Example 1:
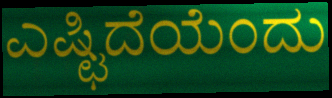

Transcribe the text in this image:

ಎಷ್ಟಿದೆಯೆಂದು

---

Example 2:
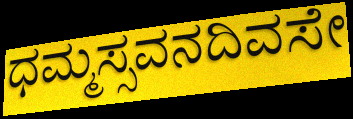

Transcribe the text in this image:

ಧಮ್ಮಸ್ಸವನದಿವಸೇ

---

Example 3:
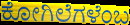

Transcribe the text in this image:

ಕೋಗಿಲೆಗಳೆಂಬ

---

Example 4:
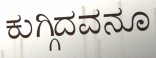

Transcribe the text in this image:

ಕುಗ್ಗಿದವನೂ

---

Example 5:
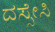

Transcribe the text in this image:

ದಸ್ಸೇಸಿ